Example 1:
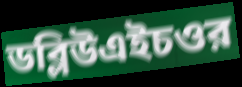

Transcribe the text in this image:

ডব্লিউএইচওর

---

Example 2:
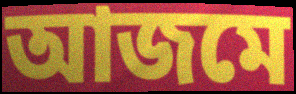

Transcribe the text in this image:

আজমে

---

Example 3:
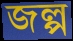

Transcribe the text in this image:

জল্প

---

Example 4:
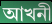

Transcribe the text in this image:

আখনী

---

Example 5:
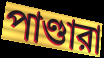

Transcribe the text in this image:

পাণ্ডারা